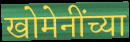
खोमेनींच्या